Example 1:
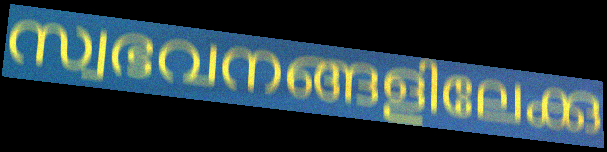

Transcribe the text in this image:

സ്വഭവനങ്ങളിലേക്കു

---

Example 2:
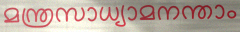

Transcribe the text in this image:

മന്ത്രസാധ്യാമനന്താം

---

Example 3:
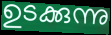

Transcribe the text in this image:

ഉടക്കുന്നു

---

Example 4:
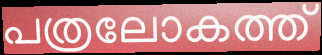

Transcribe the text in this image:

പത്രലോകത്ത്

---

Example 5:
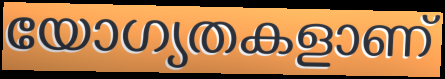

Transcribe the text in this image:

യോഗ്യതകളാണ്